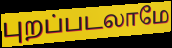
புறப்படலாமே